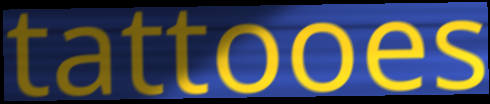
tattooes